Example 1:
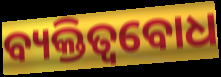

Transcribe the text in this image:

ବ୍ୟକ୍ତିତ୍ୱବୋଧ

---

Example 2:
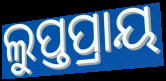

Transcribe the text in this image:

ଲୁପ୍ତପ୍ରାୟ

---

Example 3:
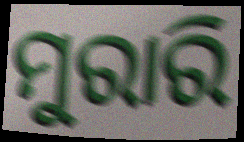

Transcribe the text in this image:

ମୁରାରି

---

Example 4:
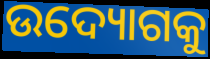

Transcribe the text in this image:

ଉଦ୍ୟୋଗକୁ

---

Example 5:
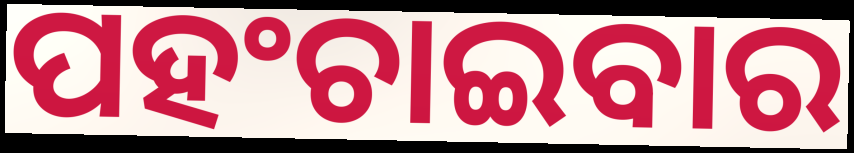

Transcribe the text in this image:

ପହଂଚାଇବାର